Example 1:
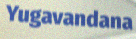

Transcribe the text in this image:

Yugavandana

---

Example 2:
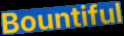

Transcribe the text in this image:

Bountiful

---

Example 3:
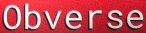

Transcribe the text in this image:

Obverse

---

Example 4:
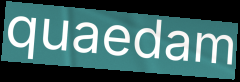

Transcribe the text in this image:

quaedam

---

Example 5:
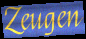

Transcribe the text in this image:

Zeugen